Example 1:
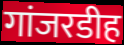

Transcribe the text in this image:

गांजरडीह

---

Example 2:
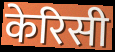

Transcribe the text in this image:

केरिसी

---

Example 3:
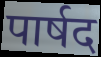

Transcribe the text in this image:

पार्षद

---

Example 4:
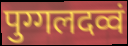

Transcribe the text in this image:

पुग्गलदव्वं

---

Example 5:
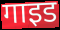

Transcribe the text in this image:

गाइड